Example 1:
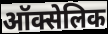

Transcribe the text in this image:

ऑक्सेलिक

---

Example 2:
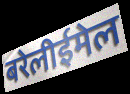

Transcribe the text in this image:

बरेलीईमेल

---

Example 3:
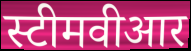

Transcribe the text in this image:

स्टीमवीआर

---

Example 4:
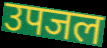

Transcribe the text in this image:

उपजल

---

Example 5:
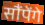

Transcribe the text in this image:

सौंपेंगे